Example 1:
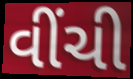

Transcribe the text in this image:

વીંચી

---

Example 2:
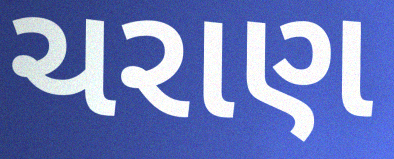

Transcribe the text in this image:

ચરાણ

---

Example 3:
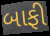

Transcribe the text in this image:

બાફી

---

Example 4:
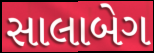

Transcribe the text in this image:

સાલાબેગ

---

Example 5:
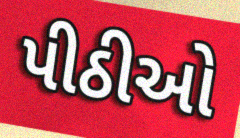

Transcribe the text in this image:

પીઠીઓ